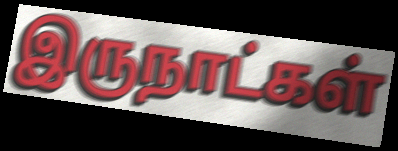
இருநாட்கள்